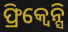
ଫ୍ରିକ୍ୱେନ୍ସି